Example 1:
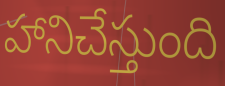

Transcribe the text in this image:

హానిచేస్తుంది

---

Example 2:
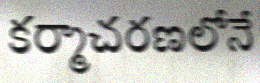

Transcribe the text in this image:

కర్మాచరణలోనే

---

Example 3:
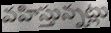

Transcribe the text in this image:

వహిస్తున్నట్లు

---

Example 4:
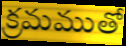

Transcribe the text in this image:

క్రమముతో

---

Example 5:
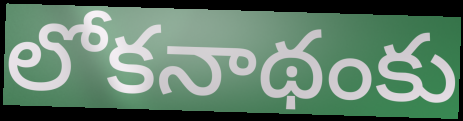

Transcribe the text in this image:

లోకనాథంకు